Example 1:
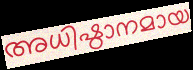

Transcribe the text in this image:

അധിഷ്ഠാനമായ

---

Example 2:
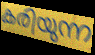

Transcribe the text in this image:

കരിയുന്ന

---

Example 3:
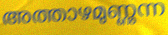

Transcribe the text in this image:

അത്താഴമുണ്ണുന്ന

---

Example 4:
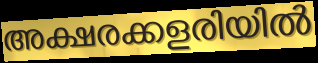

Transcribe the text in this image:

അക്ഷരക്കളരിയിൽ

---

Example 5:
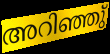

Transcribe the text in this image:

അറിഞ്ഞു്